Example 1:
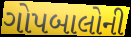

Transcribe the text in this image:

ગોપબાલોની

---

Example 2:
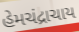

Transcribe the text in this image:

હેમચંદ્રાચાય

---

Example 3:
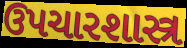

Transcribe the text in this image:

ઉપચારશાસ્ત્ર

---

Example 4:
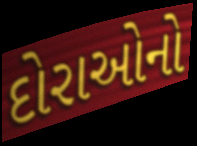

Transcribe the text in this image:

દોરાઓનો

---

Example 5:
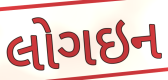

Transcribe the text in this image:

લોગઇન